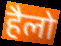
हैलो